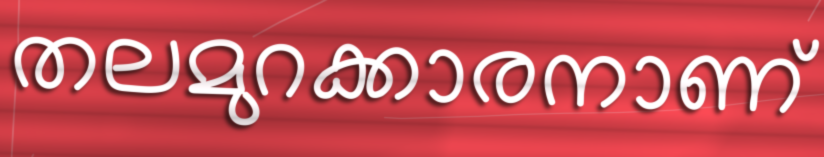
തലമുറക്കാരനാണ്